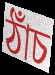
ঠাঁচ